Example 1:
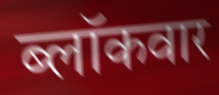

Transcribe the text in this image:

ब्लॉकवार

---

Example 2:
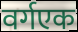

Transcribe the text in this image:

वर्गएक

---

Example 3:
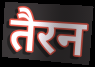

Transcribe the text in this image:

तैरन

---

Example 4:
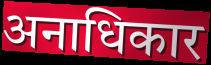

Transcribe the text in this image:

अनाधिकार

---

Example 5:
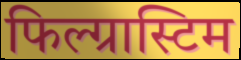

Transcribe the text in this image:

फिल्ग्रास्टिम